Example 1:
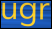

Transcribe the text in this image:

ugr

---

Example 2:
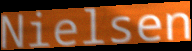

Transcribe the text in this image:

Nielsen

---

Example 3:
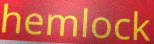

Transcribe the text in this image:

hemlock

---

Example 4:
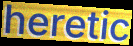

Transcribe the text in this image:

heretic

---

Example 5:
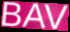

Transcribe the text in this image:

BAV